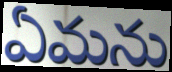
ఏమను